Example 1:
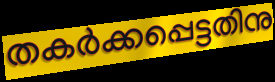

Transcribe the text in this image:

തകർക്കപ്പെട്ടതിനു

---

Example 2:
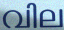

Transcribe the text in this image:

വില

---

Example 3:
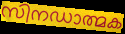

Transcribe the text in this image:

സിനഡാത്മക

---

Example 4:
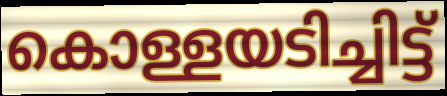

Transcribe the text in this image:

കൊള്ളയടിച്ചിട്ട്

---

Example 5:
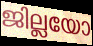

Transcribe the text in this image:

ജില്ലയോ